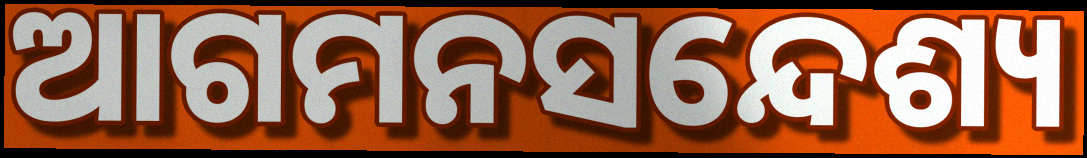
ଆଗମନସନ୍ଦେଶ୍ୟ